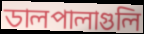
ডালপালাগুলি